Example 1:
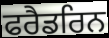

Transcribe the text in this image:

ਫਰੈਡਰਿਨ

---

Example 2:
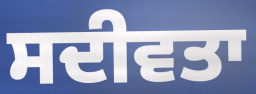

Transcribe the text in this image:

ਸਦੀਵਤਾ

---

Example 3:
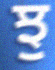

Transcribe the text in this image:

ਝੁ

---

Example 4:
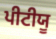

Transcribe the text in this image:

ਪੀਟੀਯੂ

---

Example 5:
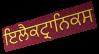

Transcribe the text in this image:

ਇਲੈਕਟ੍ਰਾਨਿਕਸ